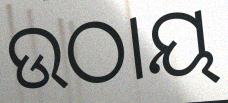
ଉଠାୟ